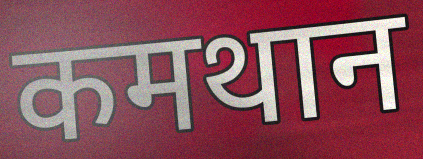
कमथान